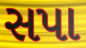
સપા